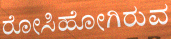
ರೋಸಿಹೋಗಿರುವ